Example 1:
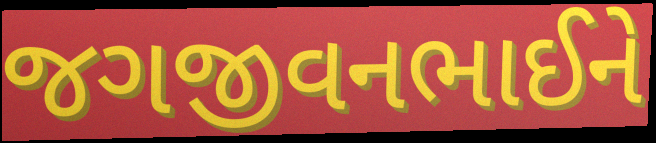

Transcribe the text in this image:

જગજીવનભાઈને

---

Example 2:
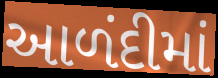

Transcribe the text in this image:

આળંદીમાં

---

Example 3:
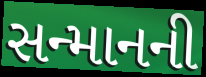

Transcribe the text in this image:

સન્માનની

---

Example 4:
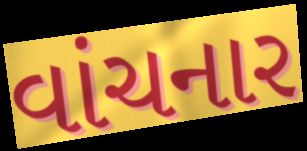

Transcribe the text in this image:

વાંચનાર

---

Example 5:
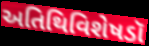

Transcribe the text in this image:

અતિથિવિશેષડૉ